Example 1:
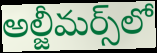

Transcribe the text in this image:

అల్జీమర్స్‌లో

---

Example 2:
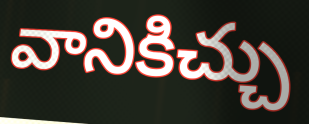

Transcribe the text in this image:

వానికిచ్చు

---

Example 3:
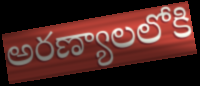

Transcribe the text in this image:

అరణ్యాలలోకి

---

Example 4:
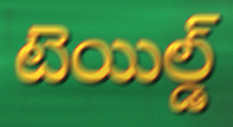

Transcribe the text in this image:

టెయిల్డ్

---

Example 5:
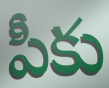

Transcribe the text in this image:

పీకు